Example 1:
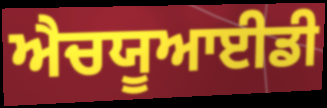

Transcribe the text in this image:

ਐਚਯੂਆਈਡੀ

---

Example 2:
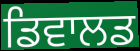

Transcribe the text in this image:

ਡਿਵਾਲਡ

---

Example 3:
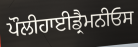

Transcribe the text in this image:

ਪੌਲੀਹਾਈਡ੍ਰੈਮਨੀਓਸ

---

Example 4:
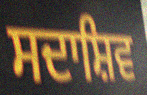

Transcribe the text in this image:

ਸਦਾਸ਼ਿਵ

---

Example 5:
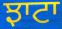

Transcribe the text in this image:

ਝਾਟਾ